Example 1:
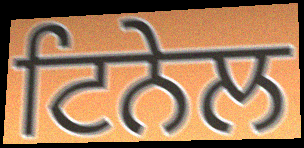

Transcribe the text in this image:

ਟਿਨੇਲ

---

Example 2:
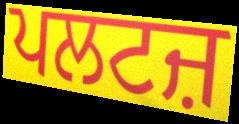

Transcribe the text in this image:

ਪਲਟਜ਼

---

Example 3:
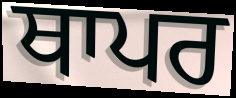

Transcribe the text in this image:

ਥਾਪਰ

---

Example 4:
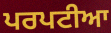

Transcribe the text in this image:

ਪਰਪਟੀਆ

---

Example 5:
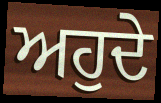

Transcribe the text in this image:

ਅਹੁਦੇ